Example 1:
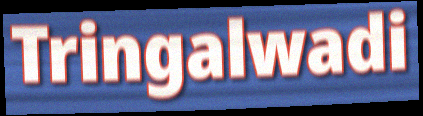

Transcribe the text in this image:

Tringalwadi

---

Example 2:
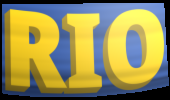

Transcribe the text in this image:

RIO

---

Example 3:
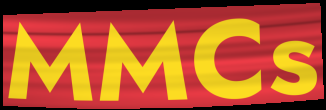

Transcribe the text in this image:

MMCs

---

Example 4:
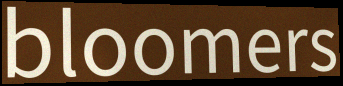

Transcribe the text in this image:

bloomers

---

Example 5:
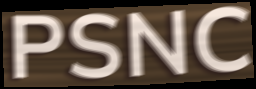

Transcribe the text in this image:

PSNC